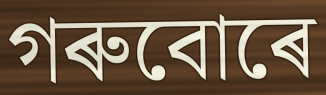
গৰুবোৰে